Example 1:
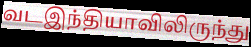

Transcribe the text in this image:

வடஇந்தியாவிலிருந்து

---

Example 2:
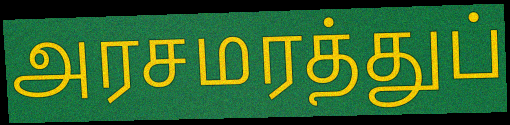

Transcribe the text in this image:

அரசமரத்துப்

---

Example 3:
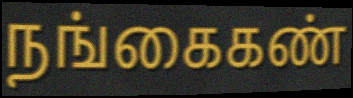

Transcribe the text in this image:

நங்கைகண்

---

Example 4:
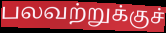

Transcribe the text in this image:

பலவற்றுக்குச்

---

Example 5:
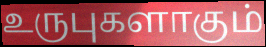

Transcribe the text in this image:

உருபுகளாகும்